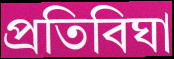
প্রতিবিঘা